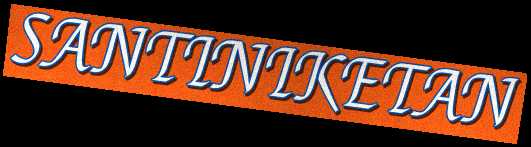
SANTINIKETAN